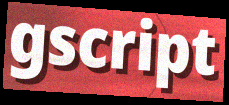
gscript